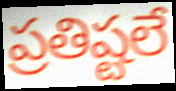
ప్రతిష్టలే